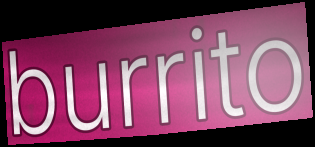
burrito